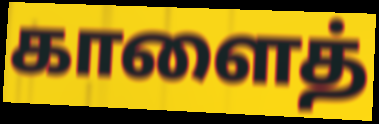
காளைத்